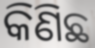
କିଣିଛ